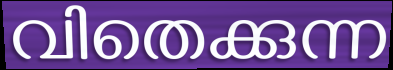
വിതെക്കുന്ന